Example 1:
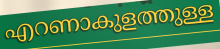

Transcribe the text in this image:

എറണാകുളത്തുള്ള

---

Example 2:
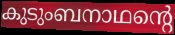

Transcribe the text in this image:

കുടുംബനാഥന്റെ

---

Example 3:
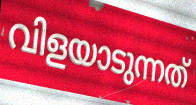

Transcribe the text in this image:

വിളയാടുന്നത്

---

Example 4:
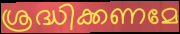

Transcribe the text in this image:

ശ്രദ്ധിക്കണമേ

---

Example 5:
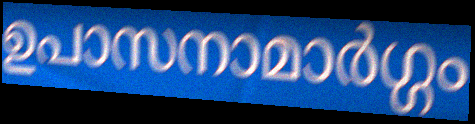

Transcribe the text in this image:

ഉപാസനാമാർഗ്ഗം